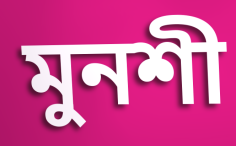
মুনশী